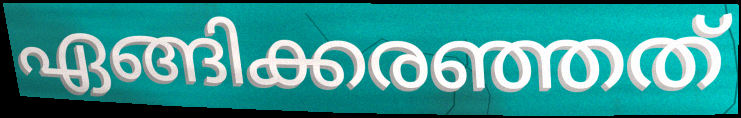
ഏങ്ങിക്കരഞ്ഞത്